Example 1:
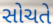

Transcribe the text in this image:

સોચતે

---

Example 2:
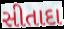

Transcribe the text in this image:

સીતાદા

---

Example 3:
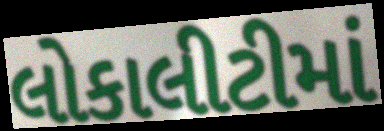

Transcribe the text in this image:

લોકાલીટીમાં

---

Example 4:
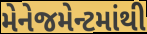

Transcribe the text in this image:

મેનેજમેન્ટમાંથી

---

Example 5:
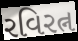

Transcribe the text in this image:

રવિરત્ન